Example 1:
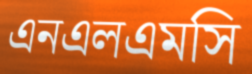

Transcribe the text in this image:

এনএলএমসি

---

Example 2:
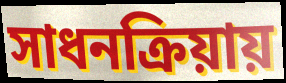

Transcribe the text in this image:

সাধনক্রিয়ায়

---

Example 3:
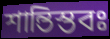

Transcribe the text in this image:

শান্তিস্তবঃ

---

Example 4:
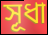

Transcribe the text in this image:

সূধা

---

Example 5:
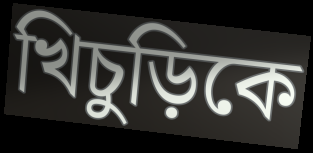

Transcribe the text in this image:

খিচুড়িকে